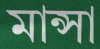
মান্সা